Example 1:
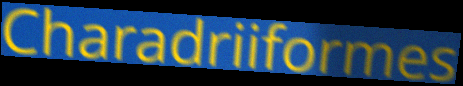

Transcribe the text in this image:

Charadriiformes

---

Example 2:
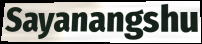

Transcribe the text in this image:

Sayanangshu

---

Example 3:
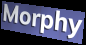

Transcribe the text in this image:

Morphy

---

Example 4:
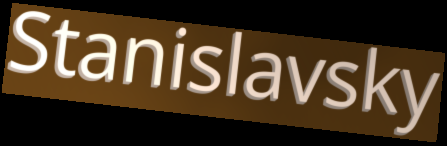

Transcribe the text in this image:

Stanislavsky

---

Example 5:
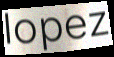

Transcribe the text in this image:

lopez